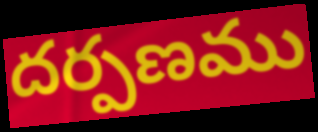
దర్పణము